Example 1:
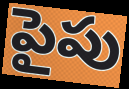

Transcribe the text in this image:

పైపు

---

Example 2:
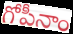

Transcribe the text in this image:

గోపీనాం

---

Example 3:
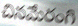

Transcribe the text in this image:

చినమేరంగి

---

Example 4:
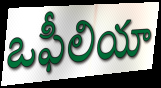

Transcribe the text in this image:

ఒఫీలియా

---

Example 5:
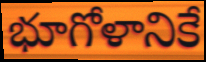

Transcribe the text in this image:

భూగోళానికే